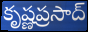
కృష్ణప్రసాద్